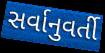
સર્વાનુવર્તી